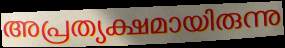
അപ്രത്യക്ഷമായിരുന്നു